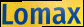
Lomax